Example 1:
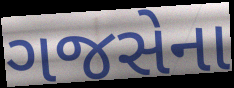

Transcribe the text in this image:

ગજસેના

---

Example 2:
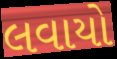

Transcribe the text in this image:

લવાયો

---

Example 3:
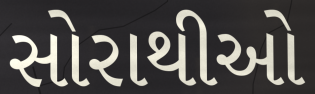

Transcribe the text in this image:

સોરાથીઓ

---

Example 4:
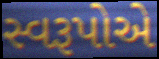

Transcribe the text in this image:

સ્વરૂપોએ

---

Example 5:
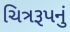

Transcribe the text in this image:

ચિત્રરૂપનું